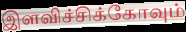
இளவிச்சிக்கோவும்